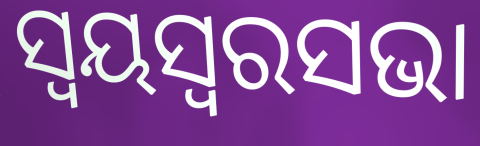
ସ୍ୱୟସ୍ୱରସଭା